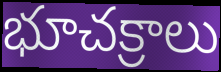
భూచక్రాలు